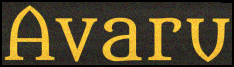
Avaru